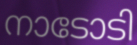
നാടോടി